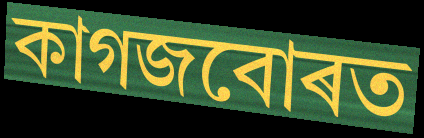
কাগজবোৰত